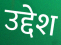
उद्देश